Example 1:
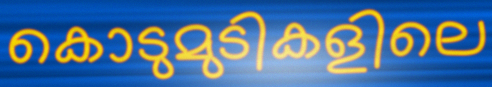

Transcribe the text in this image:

കൊടുമുടികളിലെ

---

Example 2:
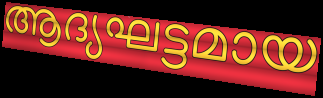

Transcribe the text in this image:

ആദ്യഘട്ടമായ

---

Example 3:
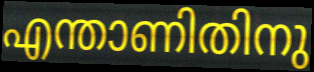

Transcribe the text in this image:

എന്താണിതിനു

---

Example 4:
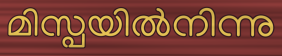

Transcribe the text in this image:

മിസ്പയിൽനിന്നു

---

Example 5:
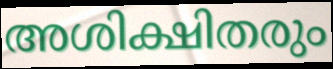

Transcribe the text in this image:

അശിക്ഷിതരും